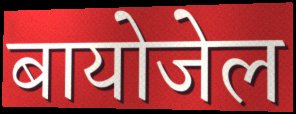
बायोजेल